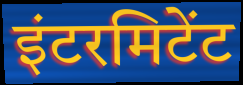
इंटरमिटेंट